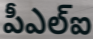
పీఎల్ఐ